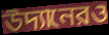
উদ্যানেরও